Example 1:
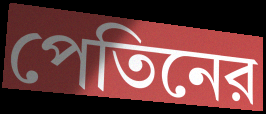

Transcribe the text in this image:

পেতিনের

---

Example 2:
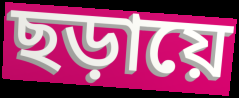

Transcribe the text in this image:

ছড়ায়ে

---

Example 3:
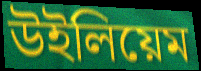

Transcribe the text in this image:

উইলিয়েম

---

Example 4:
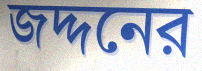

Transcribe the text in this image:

জদ্দনের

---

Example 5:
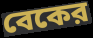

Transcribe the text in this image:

বেকের